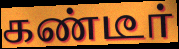
கண்டீர்